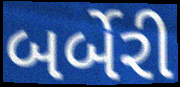
બર્બેરી